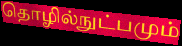
தொழில்நுட்பமும்